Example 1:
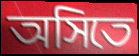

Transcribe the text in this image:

অসিতে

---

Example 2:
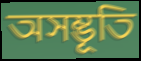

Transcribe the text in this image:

অসম্ভূতি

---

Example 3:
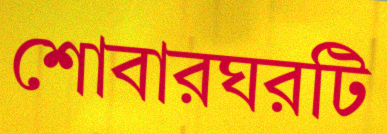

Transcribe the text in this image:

শোবারঘরটি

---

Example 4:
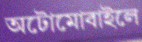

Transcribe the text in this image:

অটোমোবাইলে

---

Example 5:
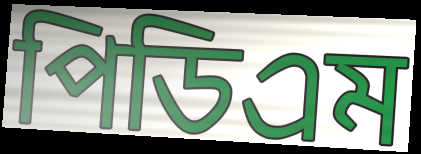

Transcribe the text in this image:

পিডিএম